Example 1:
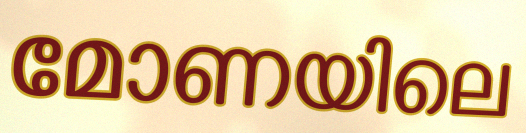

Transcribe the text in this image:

മോണയിലെ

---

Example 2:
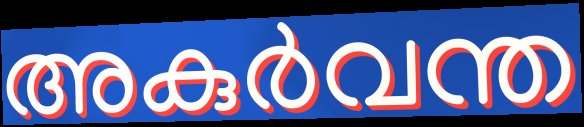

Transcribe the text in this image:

അകുർവന്ത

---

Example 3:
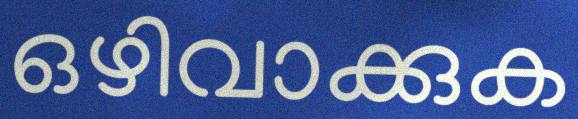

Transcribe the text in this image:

ഒഴിവാക്കുക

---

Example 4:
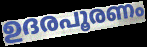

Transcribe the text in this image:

ഉദരപൂരണം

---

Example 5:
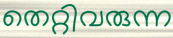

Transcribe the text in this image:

തെറ്റിവരുന്ന